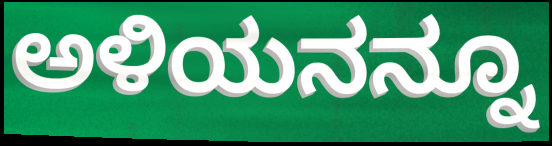
ಅಳಿಯನನ್ನೂ